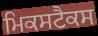
ਮਿਕਸਟੈਕਸ